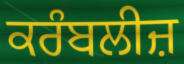
ਕਰੰਬਲੀਜ਼